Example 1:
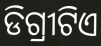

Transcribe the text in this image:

ଡିଗ୍ରୀଟିଏ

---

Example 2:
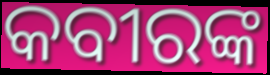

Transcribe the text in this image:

କବୀରଙ୍କ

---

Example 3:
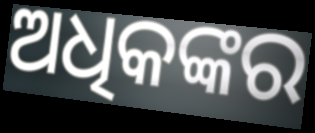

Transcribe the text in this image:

ଅଧିକଙ୍କର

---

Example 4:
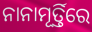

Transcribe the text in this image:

ନାନାମୂର୍ତ୍ତିରେ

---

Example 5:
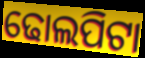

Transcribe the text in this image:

ଢୋଲପିଟା